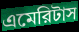
এমেরিটাস